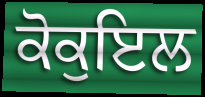
ਕੋਕੁਇਲ